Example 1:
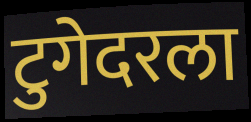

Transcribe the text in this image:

टुगेदरला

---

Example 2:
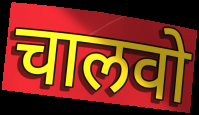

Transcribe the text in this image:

चालवो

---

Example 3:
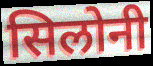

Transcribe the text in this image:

सिलोनी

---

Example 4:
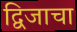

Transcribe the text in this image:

द्विजाचा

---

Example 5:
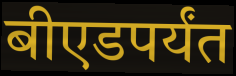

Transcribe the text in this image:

बीएडपर्यंत